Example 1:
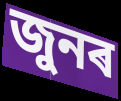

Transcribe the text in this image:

জুনৰ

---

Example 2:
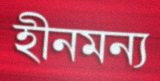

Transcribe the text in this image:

হীনমন্য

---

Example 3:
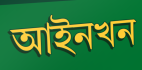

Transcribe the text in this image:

আইনখন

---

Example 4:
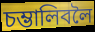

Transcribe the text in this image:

চম্ভালিবলৈ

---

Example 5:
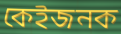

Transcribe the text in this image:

কেইজনক